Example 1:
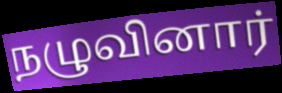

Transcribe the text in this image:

நழுவினார்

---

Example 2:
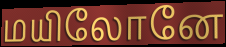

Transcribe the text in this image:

மயிலோனே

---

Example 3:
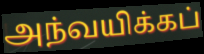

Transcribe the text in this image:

அந்வயிக்கப்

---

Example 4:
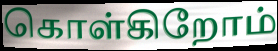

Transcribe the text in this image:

கொள்கிறோம்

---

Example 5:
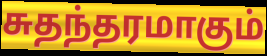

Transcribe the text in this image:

சுதந்தரமாகும்